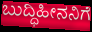
ಬುದ್ಧಿಹೀನನಿಗೆ